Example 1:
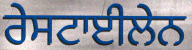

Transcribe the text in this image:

ਰੇਸਟਾਈਲੇਨ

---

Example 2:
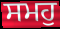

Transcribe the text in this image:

ਸਮਹੁ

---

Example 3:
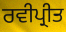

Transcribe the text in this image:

ਰਵੀਪ੍ਰੀਤ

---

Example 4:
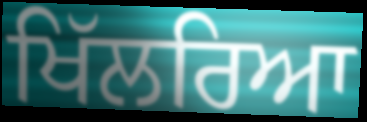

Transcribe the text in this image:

ਖਿੱਲਰਿਆ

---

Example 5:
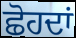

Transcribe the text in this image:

ਛੋਹਦਾਂ